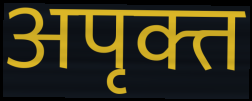
अपृक्त